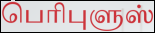
பெரிபுளுஸ்